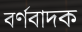
বৰ্ণবাদক